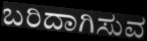
ಬರಿದಾಗಿಸುವ